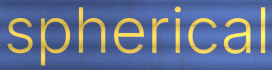
spherical